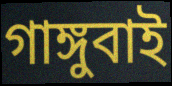
গাঙ্গুবাই